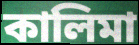
কালিমা